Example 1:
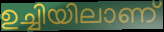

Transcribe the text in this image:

ഉച്ചിയിലാണ്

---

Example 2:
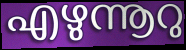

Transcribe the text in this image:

എഴുന്നൂറു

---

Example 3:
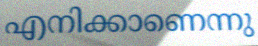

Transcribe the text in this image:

എനിക്കാണെന്നു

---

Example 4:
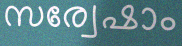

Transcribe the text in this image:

സര്വേഷാം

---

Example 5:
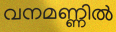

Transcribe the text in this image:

വനമണ്ണിൽ